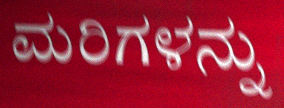
ಮರಿಗಳನ್ನು